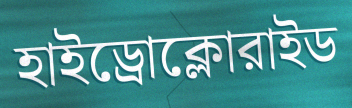
হাইড্রোক্লোরাইড